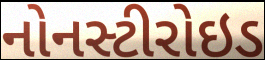
નોનસ્ટીરોઇડ